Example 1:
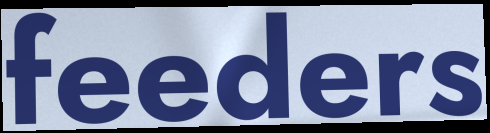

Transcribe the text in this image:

feeders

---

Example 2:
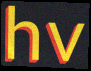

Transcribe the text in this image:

hv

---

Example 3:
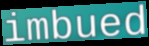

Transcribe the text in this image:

imbued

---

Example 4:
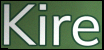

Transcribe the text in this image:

Kire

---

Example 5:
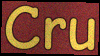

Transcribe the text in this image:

Cru